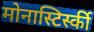
मोनास्टिर्स्की